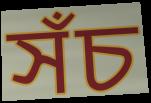
সঁচ